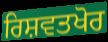
ਰਿਸ਼ਵਤਖੋਰ